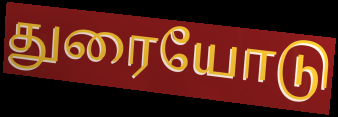
துரையோடு